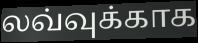
லவ்வுக்காக